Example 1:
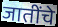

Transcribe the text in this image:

जातींचे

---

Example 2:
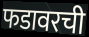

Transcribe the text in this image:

फडावरची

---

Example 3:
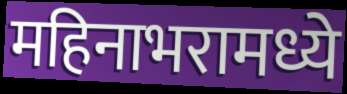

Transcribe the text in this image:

महिनाभरामध्ये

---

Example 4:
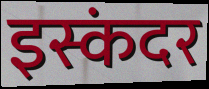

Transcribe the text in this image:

इस्कंदर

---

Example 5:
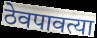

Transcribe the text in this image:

ठेवपावत्या